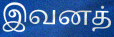
இவனத்